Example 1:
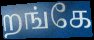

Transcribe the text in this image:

றங்கே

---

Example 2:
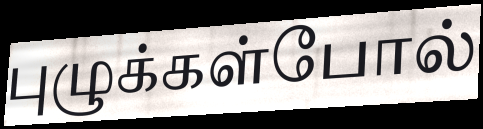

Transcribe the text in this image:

புழுக்கள்போல்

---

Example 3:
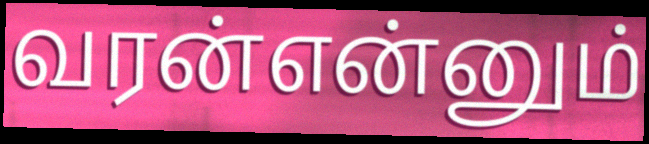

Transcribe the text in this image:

வரன்என்னும்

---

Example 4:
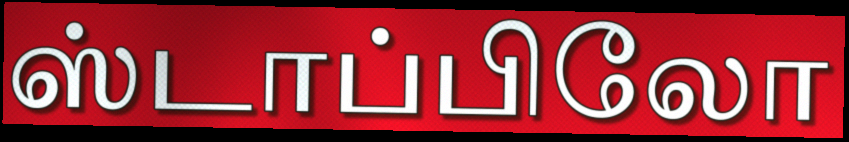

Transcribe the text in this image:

ஸ்டாப்பிலோ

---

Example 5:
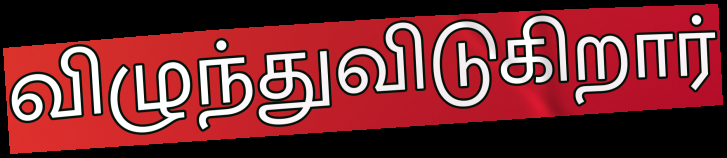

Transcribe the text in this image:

விழுந்துவிடுகிறார்